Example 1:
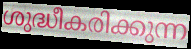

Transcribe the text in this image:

ശുദ്ധീകരിക്കുന്ന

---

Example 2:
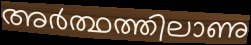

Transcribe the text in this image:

അർത്ഥത്തിലാണു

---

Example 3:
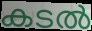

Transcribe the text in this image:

കടൽ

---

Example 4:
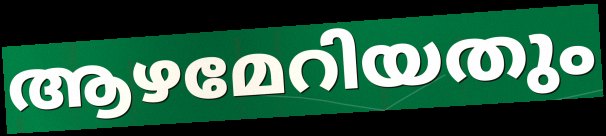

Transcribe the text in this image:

ആഴമേറിയതും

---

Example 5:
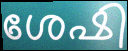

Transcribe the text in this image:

ശേഷി